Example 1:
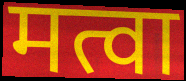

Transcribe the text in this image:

मत्वा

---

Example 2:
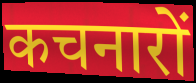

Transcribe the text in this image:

कचनारों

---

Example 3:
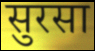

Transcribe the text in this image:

सुरसा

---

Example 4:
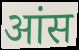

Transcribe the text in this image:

आंस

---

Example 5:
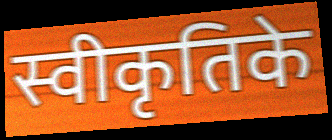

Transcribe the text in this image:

स्वीकृतिके